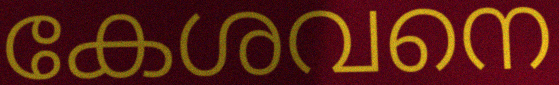
കേശവനെ